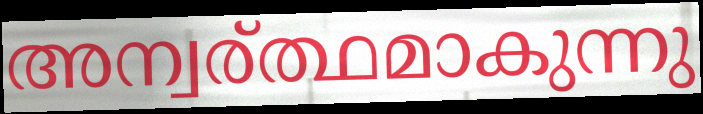
അന്വര്ത്ഥമാകുന്നു